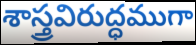
శాస్త్రవిరుద్ధముగా